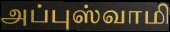
அப்புஸ்வாமி